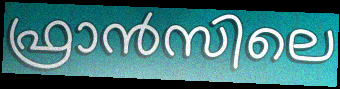
ഫ്രാൻസിലെ